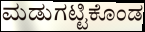
ಮಡುಗಟ್ಟಿಕೊಂಡ